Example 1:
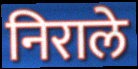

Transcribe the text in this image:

निराले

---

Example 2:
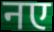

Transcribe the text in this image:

नए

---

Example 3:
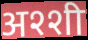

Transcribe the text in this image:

अश्शी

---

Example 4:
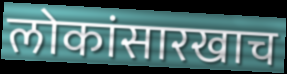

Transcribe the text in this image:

लोकांसारखाच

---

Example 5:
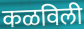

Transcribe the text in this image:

कळविली